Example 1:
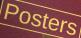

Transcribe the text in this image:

Posters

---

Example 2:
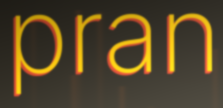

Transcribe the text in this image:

pran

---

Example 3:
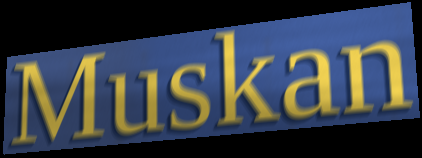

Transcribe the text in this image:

Muskan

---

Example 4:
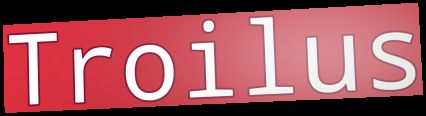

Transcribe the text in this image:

Troilus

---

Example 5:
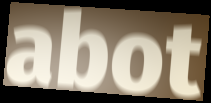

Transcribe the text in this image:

abot